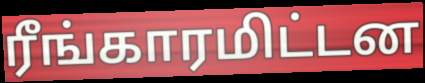
ரீங்காரமிட்டன